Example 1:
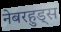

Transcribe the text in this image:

नेबरहुड्स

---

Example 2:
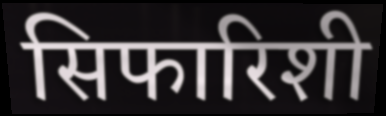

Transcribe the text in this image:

सिफारिशी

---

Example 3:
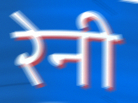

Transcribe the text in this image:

रेनी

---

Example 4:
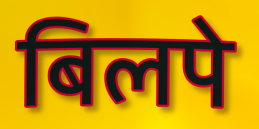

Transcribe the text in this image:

बिलपे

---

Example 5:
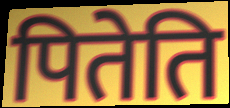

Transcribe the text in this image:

पितेति